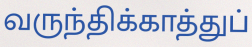
வருந்திக்காத்துப்